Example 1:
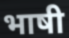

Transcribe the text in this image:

भाषी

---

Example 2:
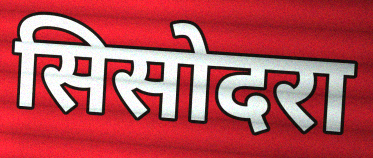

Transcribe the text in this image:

सिसोदरा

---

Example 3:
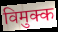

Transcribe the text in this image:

विमुक्क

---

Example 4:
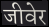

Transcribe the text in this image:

जीवेर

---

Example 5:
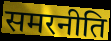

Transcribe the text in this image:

समरनीति